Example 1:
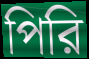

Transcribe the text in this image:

পিরি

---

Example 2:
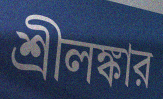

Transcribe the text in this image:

শ্রীলঙ্কার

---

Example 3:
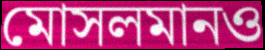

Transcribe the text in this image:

মোসলমানও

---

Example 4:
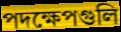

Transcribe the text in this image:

পদক্ষেপগুলি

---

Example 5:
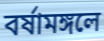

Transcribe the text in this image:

বর্ষামঙ্গলে